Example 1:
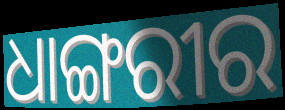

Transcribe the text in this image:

ଧାଙ୍ଗରୀର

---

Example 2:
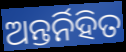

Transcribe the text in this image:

ଅନ୍ତର୍ନିହିତ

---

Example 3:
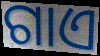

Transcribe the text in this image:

ଗାଏ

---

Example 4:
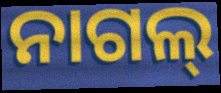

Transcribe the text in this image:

ନାଗଲ୍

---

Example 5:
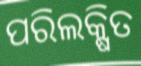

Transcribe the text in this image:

ପରିଲକ୍ଷିତ